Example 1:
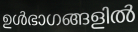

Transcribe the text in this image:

ഉൾഭാഗങ്ങളിൽ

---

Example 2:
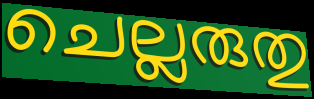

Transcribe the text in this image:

ചെല്ലരുതു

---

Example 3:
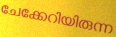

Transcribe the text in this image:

ചേക്കേറിയിരുന്ന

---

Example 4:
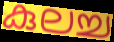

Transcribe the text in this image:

കുലച്ച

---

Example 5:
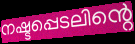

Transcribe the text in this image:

നഷ്ടപ്പെടലിന്റെ